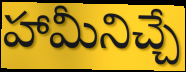
హామీనిచ్చే